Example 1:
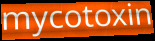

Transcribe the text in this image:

mycotoxin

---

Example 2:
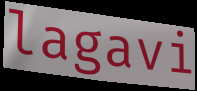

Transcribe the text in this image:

lagavi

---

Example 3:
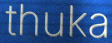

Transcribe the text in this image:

thuka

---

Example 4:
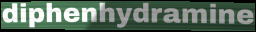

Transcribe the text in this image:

diphenhydramine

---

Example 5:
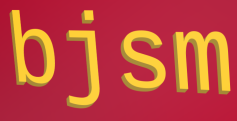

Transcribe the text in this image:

bjsm